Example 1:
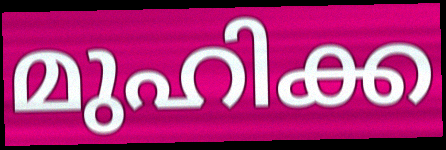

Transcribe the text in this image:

മുഹിക്ക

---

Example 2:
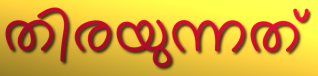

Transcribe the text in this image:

തിരയുന്നത്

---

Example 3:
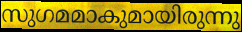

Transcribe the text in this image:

സുഗമമാകുമായിരുന്നു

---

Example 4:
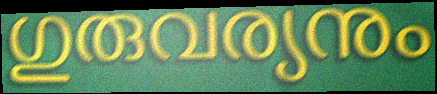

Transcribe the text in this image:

ഗുരുവര്യനും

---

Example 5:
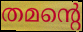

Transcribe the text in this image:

തമന്റെ